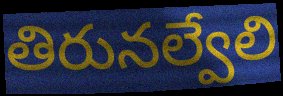
తిరునల్వేలి